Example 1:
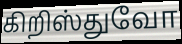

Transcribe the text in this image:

கிறிஸ்துவோ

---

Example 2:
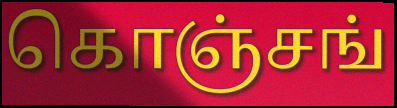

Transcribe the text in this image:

கொஞ்சங்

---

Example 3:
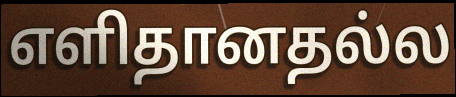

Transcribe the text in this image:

எளிதானதல்ல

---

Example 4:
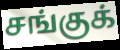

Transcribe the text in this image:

சங்குக்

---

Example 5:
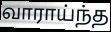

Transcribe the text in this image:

வாராய்ந்த